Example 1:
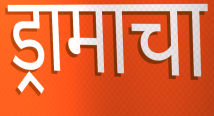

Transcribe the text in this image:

ड्रामाचा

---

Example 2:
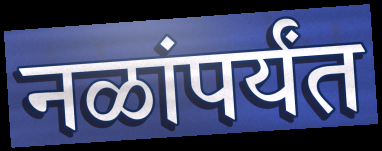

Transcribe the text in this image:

नळांपर्यंत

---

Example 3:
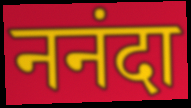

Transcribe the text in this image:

ननंदा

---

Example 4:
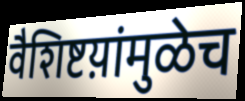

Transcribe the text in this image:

वैशिष्टय़ांमुळेच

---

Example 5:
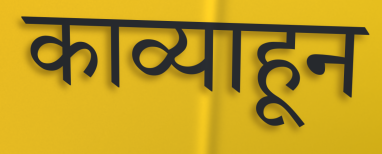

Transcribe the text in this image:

काव्याहून